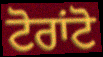
ਟੋਰਾਂਟੋ